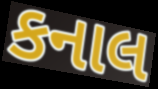
કનાલ